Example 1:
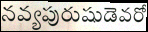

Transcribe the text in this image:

నవ్యపురుషుడెవరో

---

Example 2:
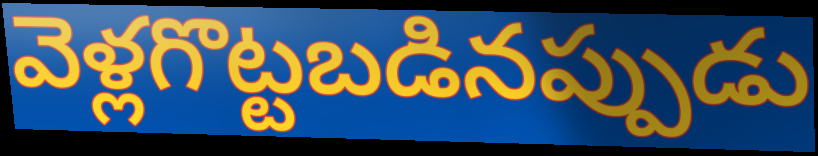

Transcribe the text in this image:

వెళ్లగొట్టబడినప్పుడు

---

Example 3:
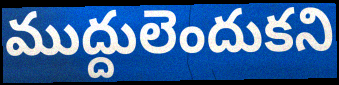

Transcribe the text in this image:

ముద్దులెందుకని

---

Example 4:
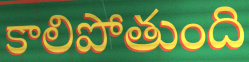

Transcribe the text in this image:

కాలిపోతుంది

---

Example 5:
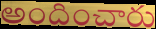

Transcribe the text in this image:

అందించారు